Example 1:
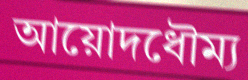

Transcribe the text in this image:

আয়োদধৌম্য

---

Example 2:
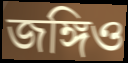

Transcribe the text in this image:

জঙ্গিও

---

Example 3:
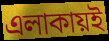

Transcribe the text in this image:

এলাকায়ই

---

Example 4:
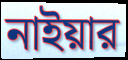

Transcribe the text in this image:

নাইয়ার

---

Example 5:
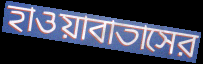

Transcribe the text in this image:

হাওয়াবাতাসের